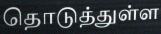
தொடுத்துள்ள